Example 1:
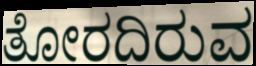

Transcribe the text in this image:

ತೋರದಿರುವ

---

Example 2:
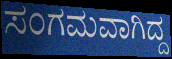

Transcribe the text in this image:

ಸಂಗಮವಾಗಿದ್ದ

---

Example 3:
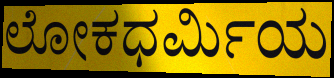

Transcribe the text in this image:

ಲೋಕಧರ್ಮಿಯ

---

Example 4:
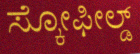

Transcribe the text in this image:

ಸ್ಕೋಫೀಲ್ಡ್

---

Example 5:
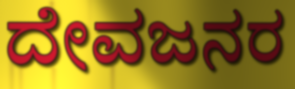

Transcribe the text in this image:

ದೇವಜನರ